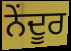
ਨੇਂਦੂਰ